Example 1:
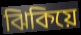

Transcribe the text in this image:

ঝিকিয়ে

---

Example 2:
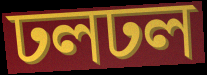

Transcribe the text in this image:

ঢলঢল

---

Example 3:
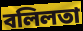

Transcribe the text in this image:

বলিলতা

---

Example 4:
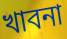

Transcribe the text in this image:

খাবনা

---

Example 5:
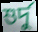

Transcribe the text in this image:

শুর্দু